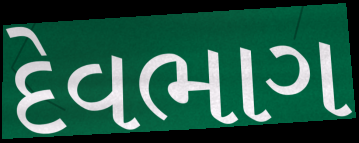
દેવભાગ